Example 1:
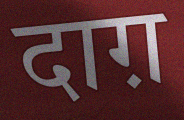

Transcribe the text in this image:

दाग़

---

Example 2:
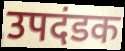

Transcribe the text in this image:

उपदंडक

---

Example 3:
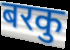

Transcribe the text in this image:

बरकु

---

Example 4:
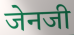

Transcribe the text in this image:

जेनजी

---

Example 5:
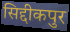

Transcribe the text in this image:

सिद्दीकपुर